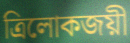
ত্রিলোকজয়ী